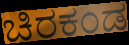
ಚಿರಕಂಡ